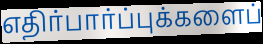
எதிர்பார்ப்புக்களைப்